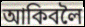
আকিবলৈ